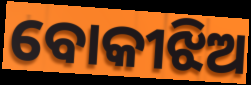
ବୋକୀଝିଅ